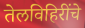
तेलविहिरींचे